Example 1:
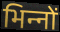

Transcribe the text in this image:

भिन्नों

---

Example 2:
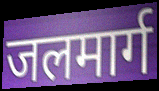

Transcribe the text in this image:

जलमार्ग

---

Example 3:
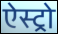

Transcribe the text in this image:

ऐस्ट्रो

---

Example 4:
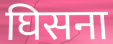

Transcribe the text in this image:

घिसना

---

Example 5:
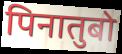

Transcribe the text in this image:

पिनातुबो